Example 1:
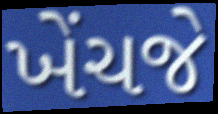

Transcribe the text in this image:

ખેંચજે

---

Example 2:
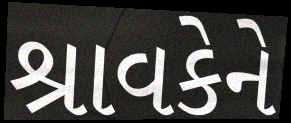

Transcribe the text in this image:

શ્રાવકેને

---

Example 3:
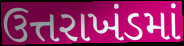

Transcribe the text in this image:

ઉત્તરાખંડમાં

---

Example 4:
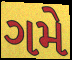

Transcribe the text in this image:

ગમે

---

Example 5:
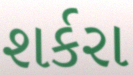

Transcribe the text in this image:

શર્કરા